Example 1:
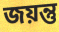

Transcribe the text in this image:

জয়ন্তু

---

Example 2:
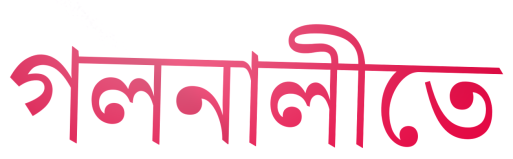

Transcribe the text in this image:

গলনালীতে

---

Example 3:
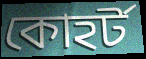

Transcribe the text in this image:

কোহর্ট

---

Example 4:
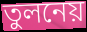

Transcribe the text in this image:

তুলনেয়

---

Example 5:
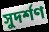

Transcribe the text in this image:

সুদর্শণ